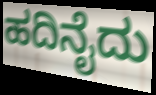
ಹದಿನೈದು